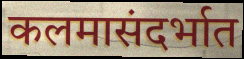
कलमासंदर्भात